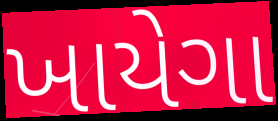
ખાયેગા